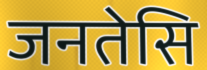
जनतेसि